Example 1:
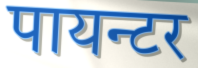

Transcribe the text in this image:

पायन्टर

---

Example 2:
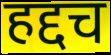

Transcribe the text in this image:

हद्दच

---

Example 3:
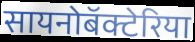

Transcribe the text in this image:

सायनोबॅक्टेरिया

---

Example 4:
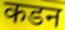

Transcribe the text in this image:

कडन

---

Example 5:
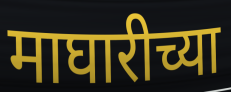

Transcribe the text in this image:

माघारीच्या